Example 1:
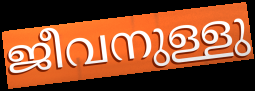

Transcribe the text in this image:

ജീവനുള്ളു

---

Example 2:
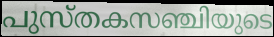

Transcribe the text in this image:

പുസ്തകസഞ്ചിയുടെ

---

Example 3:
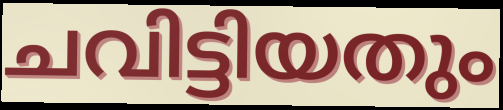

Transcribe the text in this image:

ചവിട്ടിയതും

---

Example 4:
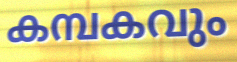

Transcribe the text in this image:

കമ്പകവും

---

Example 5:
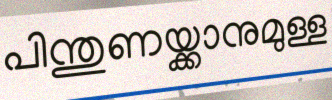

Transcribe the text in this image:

പിന്തുണയ്ക്കാനുമുള്ള